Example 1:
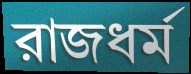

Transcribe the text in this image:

রাজধর্ম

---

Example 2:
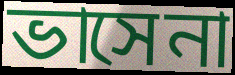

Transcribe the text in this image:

ভাসেনা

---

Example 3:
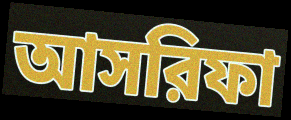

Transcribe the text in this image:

আসরিফা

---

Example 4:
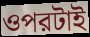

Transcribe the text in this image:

ওপরটাই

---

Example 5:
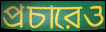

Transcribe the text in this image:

প্রচারেও